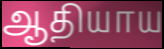
ஆதியாய